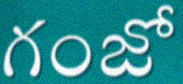
గంజో